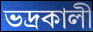
ভদ্রকালী